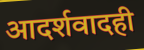
आदर्शवादही